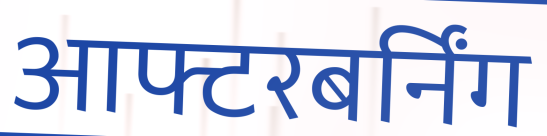
आफ्टरबर्निंग